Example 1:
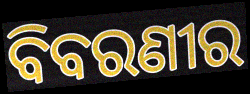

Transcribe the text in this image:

ବିବରଣୀର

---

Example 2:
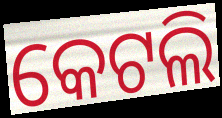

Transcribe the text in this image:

କେଟଲି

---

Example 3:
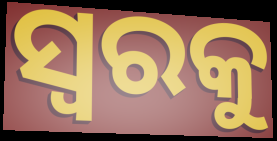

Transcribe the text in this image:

ସ୍ୱରକୁ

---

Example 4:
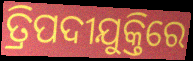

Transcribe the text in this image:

ତ୍ରିପଦୀଯୁକ୍ତିରେ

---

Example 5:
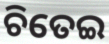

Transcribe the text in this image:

ଚିତେଇ